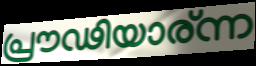
പ്രൗഢിയാര്ന്ന